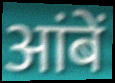
आंबें